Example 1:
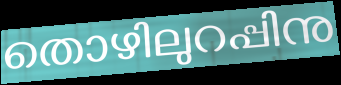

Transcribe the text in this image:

തൊഴിലുറപ്പിനു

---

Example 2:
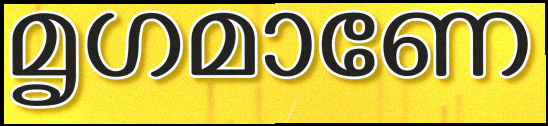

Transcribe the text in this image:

മൃഗമാണേ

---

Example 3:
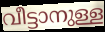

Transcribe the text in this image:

വീട്ടാനുള്ള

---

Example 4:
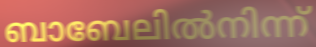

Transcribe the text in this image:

ബാബേലിൽനിന്ന്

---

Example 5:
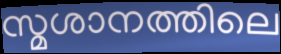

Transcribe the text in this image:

സ്മശാനത്തിലെ